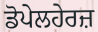
ਡੋਪੇਲਹੇਰਜ਼